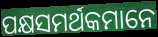
ପକ୍ଷସମର୍ଥକମାନେ